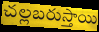
చల్లబరుస్తాయి